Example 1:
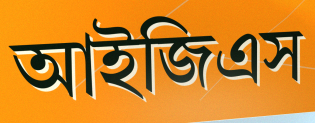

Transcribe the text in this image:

আইজিএস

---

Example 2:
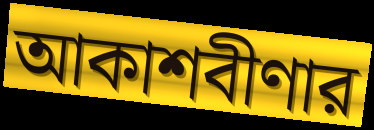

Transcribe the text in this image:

আকাশবীণার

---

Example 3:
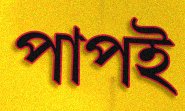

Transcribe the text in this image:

পাপই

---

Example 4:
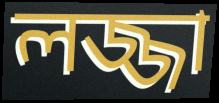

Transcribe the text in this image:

লজ্জা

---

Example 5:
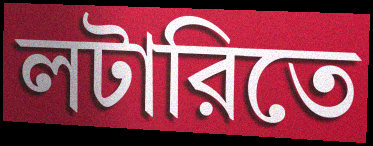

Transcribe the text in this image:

লটারিতে